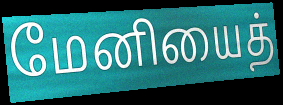
மேனியைத்